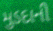
મુડદાની